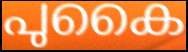
പുകൈ